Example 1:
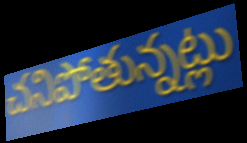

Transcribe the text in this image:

చనిపోతున్నట్లు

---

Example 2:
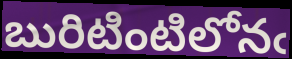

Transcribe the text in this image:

బురిటింటిలోనఁ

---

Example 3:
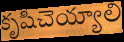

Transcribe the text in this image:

కృషిచెయ్యాలి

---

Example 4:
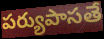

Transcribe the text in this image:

పర్యుపాసతే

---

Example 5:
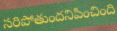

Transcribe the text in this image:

సరిపోతుందనిపించింది